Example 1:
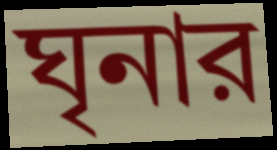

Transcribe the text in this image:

ঘৃনার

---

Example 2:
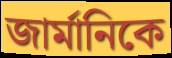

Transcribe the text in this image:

জার্মানিকে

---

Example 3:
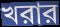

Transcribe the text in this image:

খরার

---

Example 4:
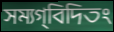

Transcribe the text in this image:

সম্যগ্‌বিদিতং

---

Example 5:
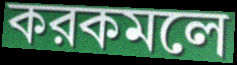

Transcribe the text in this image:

করকমলে